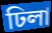
ঢিলা